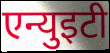
एन्युइटी